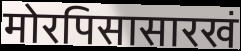
मोरपिसासारखं